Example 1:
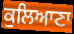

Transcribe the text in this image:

ਕੁਲਿਆਣਾ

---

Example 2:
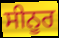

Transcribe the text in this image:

ਸੀਨੂਰ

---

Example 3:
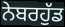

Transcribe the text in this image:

ਨੇਬਰਹੁੱਡ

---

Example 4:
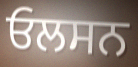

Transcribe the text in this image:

ਓਲਸਨ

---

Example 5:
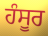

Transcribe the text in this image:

ਹੰਸੂਰ